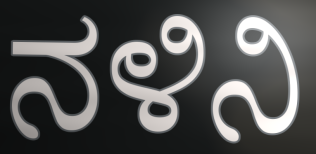
ನಳಿನಿ